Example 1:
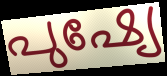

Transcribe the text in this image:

പുഷ്യേ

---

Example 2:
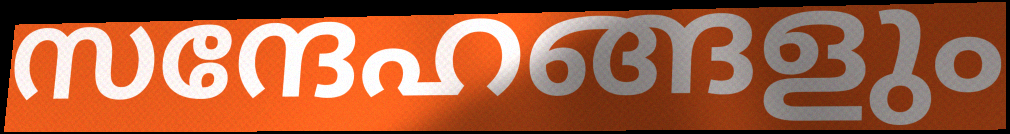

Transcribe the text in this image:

സന്ദേഹങ്ങളും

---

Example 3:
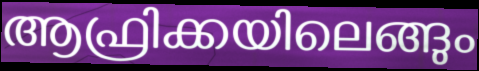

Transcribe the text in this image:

ആഫ്രിക്കയിലെങ്ങും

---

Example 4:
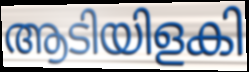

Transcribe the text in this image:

ആടിയിളകി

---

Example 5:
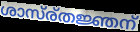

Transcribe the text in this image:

ശാസ്ര്തജ്ഞന്